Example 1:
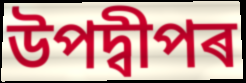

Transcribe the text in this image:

উপদ্বীপৰ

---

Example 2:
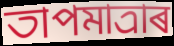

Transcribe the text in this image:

তাপমাত্ৰাৰ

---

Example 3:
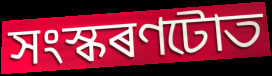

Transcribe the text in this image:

সংস্কৰণটোত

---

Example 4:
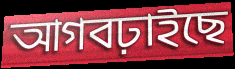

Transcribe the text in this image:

আগবঢ়াইছে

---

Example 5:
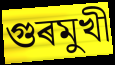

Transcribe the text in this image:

গুৰমুখী